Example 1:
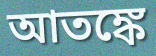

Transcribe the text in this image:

আতঙ্কে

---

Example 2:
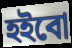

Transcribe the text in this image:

হইবো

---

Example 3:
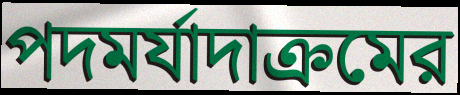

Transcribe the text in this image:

পদমর্যাদাক্রমের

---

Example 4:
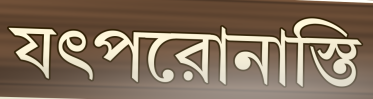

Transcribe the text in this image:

যৎপরোনাস্তি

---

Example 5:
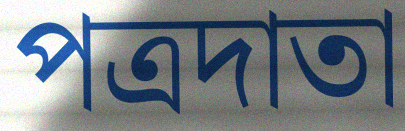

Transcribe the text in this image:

পত্রদাতা